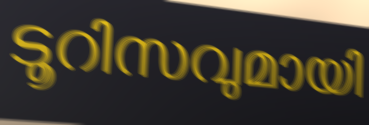
ടൂറിസവുമായി